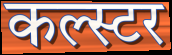
कल्स्टर